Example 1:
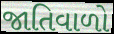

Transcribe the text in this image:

જાતિવાળો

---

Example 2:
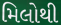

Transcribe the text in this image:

મિલોથી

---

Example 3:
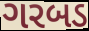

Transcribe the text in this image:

ગરબડ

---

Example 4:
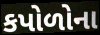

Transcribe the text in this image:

કપોળોના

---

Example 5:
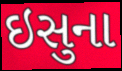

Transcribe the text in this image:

ઇસુના